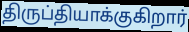
திருப்தியாக்குகிறார்